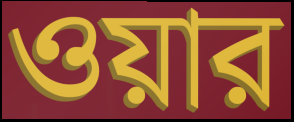
ওয়ার